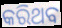
କରିଥବ